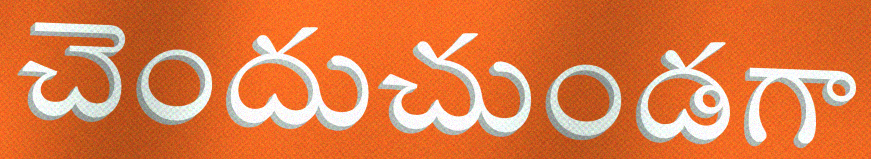
చెందుచుండగా